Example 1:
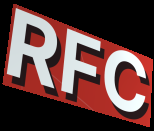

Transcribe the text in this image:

RFC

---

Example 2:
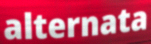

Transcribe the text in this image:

alternata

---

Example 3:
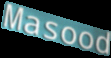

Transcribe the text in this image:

Masood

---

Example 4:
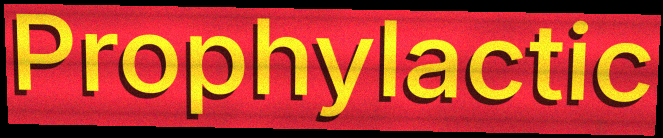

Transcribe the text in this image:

Prophylactic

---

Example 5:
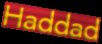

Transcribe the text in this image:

Haddad